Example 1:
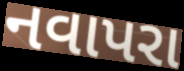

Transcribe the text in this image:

નવાપરા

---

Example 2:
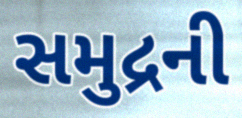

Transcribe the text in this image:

સમુદ્રની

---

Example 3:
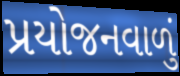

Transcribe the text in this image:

પ્રયોજનવાળું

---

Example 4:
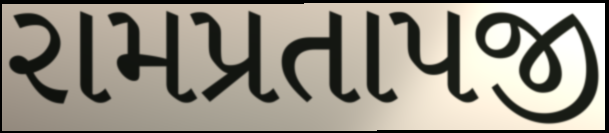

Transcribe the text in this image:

રામપ્રતાપજી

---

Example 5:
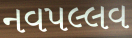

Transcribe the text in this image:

નવપલ્લવ